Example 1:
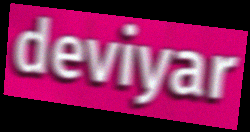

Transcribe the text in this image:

deviyar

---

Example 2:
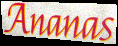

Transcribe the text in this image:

Ananas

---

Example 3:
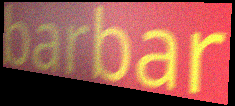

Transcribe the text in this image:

barbar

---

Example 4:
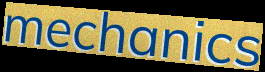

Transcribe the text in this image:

mechanics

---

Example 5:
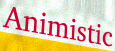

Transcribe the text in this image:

Animistic